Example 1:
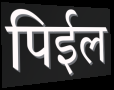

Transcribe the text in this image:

पिईल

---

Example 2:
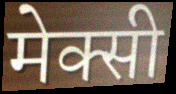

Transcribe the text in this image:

मेक्सी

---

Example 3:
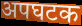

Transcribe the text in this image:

अपघटक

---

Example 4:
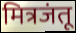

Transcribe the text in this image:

मित्रजंतू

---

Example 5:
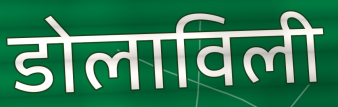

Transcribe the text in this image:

डोलाविली